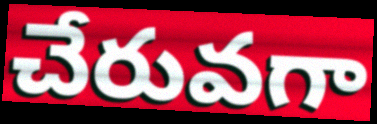
చేరువగా